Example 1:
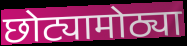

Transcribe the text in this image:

छोट्यामोठ्या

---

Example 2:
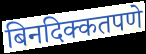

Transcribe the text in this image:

बिनदिक्कतपणे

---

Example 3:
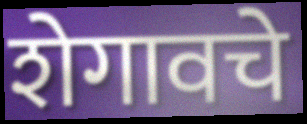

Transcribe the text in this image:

शेगावचे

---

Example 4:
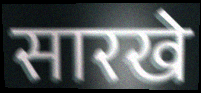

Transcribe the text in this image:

सारखे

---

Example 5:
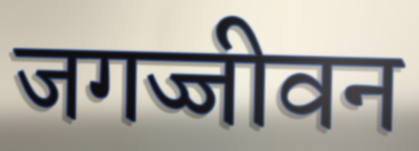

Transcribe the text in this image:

जगज्जीवन